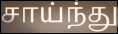
சாய்ந்து